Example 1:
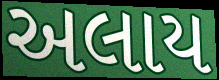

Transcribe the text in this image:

અલાય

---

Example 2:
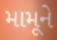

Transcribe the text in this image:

મામૂને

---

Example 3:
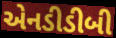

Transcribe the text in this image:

એનડીડીબી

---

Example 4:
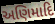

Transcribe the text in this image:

અણિમાદિ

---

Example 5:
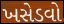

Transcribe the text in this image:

ખસેડવો